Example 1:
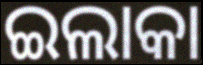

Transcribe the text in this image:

ଇଲାକା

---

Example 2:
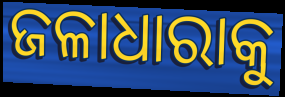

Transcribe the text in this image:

ଜଳାଧାରାକୁ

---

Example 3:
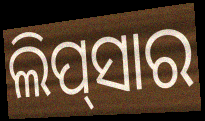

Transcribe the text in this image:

ଲିପ୍‌ସାର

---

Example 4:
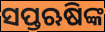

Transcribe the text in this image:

ସପ୍ତଋଷିଙ୍କ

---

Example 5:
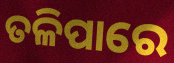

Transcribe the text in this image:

ତଳିପାରେ